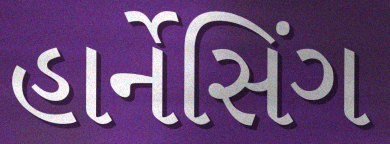
હાર્નેસિંગ